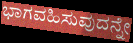
ಭಾಗವಹಿಸುವುದನ್ನೇ